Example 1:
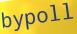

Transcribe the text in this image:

bypoll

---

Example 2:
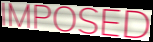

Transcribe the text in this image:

IMPOSED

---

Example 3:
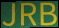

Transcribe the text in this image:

JRB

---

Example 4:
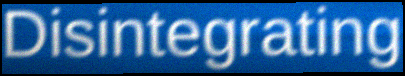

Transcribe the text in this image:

Disintegrating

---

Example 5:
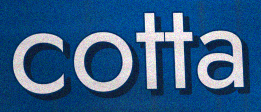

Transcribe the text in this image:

cotta